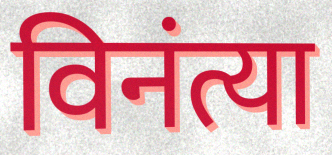
विनंत्या